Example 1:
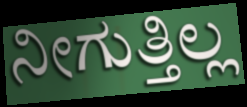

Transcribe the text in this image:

ನೀಗುತ್ತಿಲ್ಲ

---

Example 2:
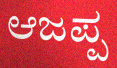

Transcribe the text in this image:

ಆಜಪ್ಪ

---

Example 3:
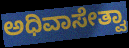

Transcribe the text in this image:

ಅಧಿವಾಸೇತ್ವಾ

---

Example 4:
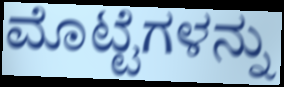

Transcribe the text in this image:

ಮೊಟ್ಟೆಗಳನ್ನು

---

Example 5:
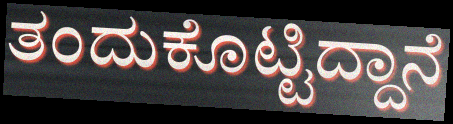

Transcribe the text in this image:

ತಂದುಕೊಟ್ಟಿದ್ದಾನೆ